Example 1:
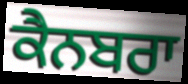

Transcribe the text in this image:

ਕੈਨਬਰਾ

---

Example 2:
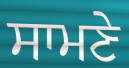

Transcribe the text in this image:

ਸਾਮਣੇ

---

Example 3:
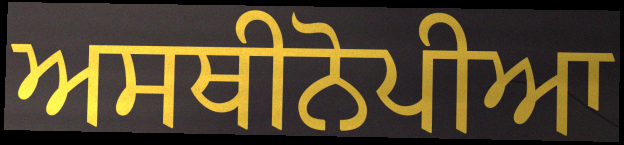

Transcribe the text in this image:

ਅਸਥੀਨੋਪੀਆ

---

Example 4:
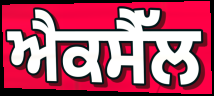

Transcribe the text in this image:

ਐਕਸੈੱਲ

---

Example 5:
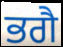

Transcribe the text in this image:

ਭਗੈ